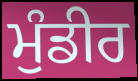
ਮੁੰਡੀਰ